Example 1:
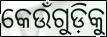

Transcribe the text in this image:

କେଉଁଗୁଡ଼ିକୁ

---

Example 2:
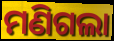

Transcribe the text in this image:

ମଣିଗଲା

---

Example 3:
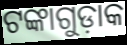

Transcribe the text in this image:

ଟଙ୍କାଗୁଡ଼ାକ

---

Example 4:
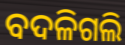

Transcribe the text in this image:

ବଦଳିଗଲି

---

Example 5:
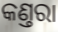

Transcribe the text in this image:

କଣ୍ତରା